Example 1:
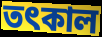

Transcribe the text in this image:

তৎকাল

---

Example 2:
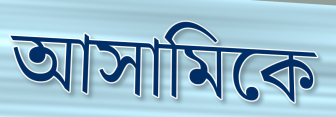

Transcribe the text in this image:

আসামিকে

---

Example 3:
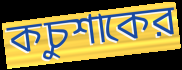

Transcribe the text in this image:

কচুশাকের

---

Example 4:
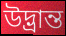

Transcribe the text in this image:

উদ্ভ্রান্ত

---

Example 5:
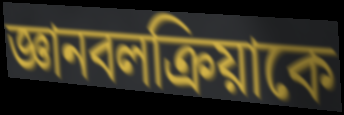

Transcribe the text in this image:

জ্ঞানবলক্রিয়াকে